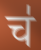
च॑